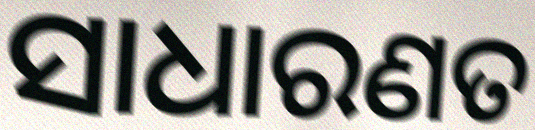
ସାଧାରଣତ